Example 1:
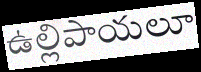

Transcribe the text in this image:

ఉల్లిపాయలూ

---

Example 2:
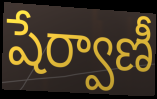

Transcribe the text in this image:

షేర్వాణీ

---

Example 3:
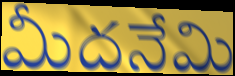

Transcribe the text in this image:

మీదనేమి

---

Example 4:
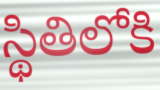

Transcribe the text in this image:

స్థితిలోకి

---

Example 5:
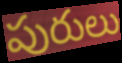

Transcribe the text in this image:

పురులు